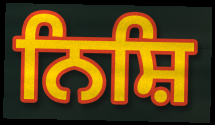
ਨਿਸ਼ਿ